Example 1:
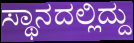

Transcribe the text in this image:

ಸ್ಥಾನದಲ್ಲಿದ್ದು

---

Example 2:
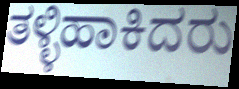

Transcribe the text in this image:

ತಳ್ಳಿಹಾಕಿದರು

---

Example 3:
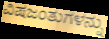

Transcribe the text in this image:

ವಿಷಜಂತುಗಳನ್ನು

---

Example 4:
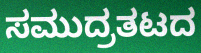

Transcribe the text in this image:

ಸಮುದ್ರತಟದ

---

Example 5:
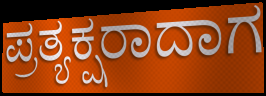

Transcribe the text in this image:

ಪ್ರತ್ಯಕ್ಷರಾದಾಗ